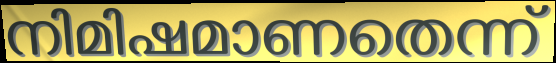
നിമിഷമാണതെന്ന്